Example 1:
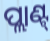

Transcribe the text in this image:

ପ୍ଲାଣ୍ଟ୍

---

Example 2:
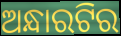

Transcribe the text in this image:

ଅନ୍ଧାରଟିର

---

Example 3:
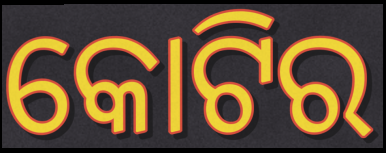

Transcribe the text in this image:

କୋଟିର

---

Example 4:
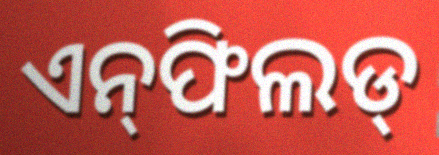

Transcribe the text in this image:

ଏନ୍‌ଫିଲଡ୍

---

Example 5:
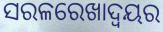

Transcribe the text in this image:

ସରଳରେଖାଦ୍ବୟର